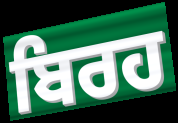
ਬਿਰਹ